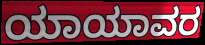
ಯಾಯಾವರ